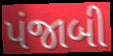
પંજાબી